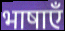
भाषाएँ